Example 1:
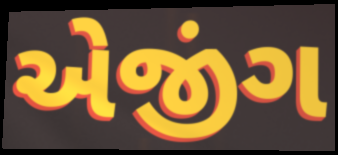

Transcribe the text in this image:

એજીંગ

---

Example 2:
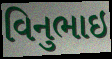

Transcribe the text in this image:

વિનુભાઇ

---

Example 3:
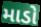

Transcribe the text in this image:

માડો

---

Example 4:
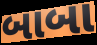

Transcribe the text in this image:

બાબા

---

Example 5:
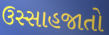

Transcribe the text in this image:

ઉસ્સાહજાતો